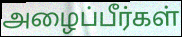
அழைப்பீர்கள்